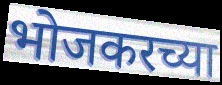
भोजकरच्या